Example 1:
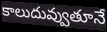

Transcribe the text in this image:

కాలుదువ్వుతూనే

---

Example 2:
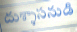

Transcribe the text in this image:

దుశ్శాసనుడి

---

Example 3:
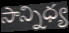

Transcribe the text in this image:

సాన్నిధ్య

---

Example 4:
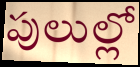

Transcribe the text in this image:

పులుల్లో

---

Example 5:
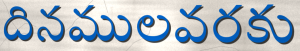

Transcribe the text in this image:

దినములవరకు